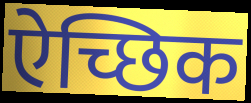
ऐच्छिक